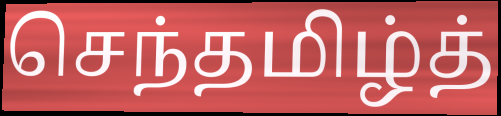
செந்தமிழ்த்